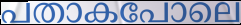
പതാകപോലെ